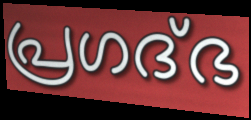
പ്രഗദ്ഭ